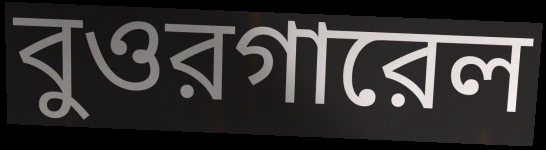
বুওরগারেল